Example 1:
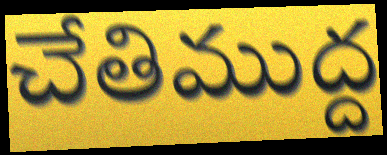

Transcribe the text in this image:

చేతిముద్ద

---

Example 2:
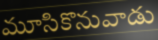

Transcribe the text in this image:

మూసికొనువాడు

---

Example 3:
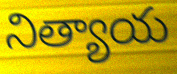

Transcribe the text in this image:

నిత్యాయ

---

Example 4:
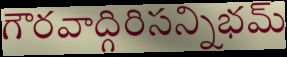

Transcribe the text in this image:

గౌరవాద్గిరిసన్నిభమ్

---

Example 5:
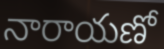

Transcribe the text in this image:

నారాయణో